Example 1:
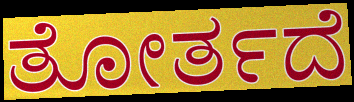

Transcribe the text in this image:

ತೋರ್ತದೆ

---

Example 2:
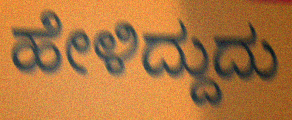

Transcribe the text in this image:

ಹೇಳಿದ್ದುದು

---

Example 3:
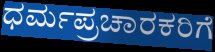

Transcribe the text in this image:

ಧರ್ಮಪ್ರಚಾರಕರಿಗೆ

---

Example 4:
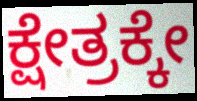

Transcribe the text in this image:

ಕ್ಷೇತ್ರಕ್ಕೇ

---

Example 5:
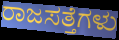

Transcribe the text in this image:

ರಾಜಸತ್ತೆಗಳು